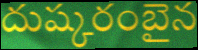
దుష్కరంబైన